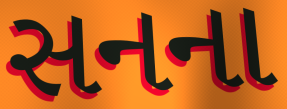
સનના